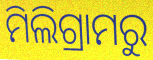
ମିଲିଗ୍ରାମରୁ